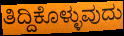
ತಿದ್ದಿಕೊಳ್ಳುವುದು